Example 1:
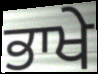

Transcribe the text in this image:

ਭਾਖੇ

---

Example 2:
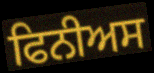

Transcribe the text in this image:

ਫਿਨੀਅਸ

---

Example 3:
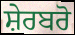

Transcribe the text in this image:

ਸ਼ੇਰਬਰੋ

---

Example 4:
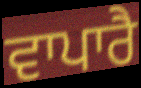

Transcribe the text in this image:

ਵਾਪਾਰੈ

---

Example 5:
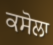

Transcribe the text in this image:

ਕਸੋਲਾ